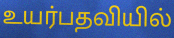
உயர்பதவியில்